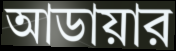
আডায়ার